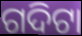
ଗଦିଟା